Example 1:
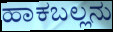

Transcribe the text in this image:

ಹಾಕಬಲ್ಲನು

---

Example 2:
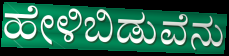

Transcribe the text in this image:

ಹೇಳಿಬಿಡುವೆನು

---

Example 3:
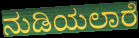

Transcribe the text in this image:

ನುಡಿಯಲಾರೆ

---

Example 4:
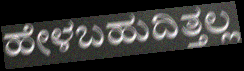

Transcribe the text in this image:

ಹೇಳಬಹುದಿತ್ತಲ್ಲ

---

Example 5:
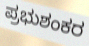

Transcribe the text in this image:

ಪ್ರಭುಶಂಕರ